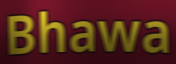
Bhawa